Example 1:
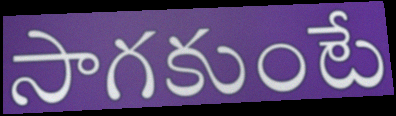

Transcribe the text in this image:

సాగకుంటే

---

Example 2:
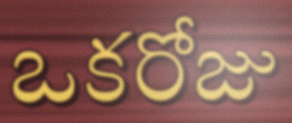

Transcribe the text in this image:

ఒకరోజు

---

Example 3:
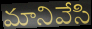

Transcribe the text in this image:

మానివేసి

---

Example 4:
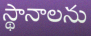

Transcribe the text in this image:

స్థానాలను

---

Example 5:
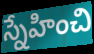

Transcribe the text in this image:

స్నేహించి